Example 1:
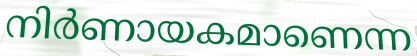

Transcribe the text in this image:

നിർണായകമാണെന്ന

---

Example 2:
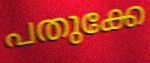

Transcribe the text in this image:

പതുക്കേ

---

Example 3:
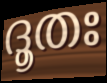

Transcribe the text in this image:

ദൂതഃ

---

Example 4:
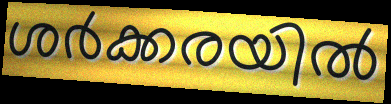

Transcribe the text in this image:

ശർക്കരയിൽ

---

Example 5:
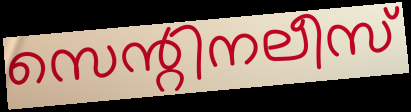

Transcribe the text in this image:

സെന്റിനലീസ്